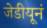
जेडीयूनं